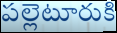
పల్లెటూరుకి